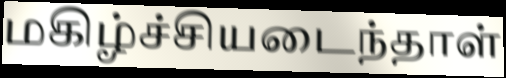
மகிழ்ச்சியடைந்தாள்